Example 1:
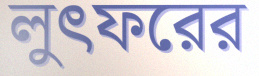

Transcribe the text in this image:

লুৎফরের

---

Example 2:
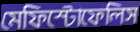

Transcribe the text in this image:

মেফিস্টোফেলিস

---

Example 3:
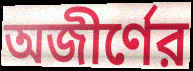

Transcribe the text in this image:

অজীর্ণের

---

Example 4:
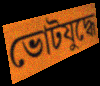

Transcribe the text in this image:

ভোটযুদ্ধে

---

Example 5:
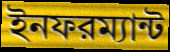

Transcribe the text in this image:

ইনফরম্যান্ট